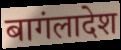
बागंलादेश